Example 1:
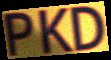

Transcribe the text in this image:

PKD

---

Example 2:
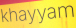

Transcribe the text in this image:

khayyam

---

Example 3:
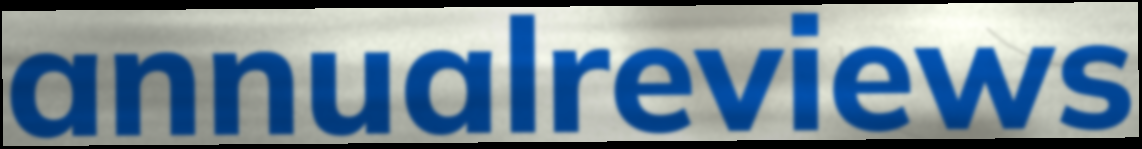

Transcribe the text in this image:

annualreviews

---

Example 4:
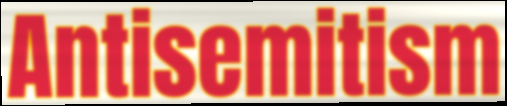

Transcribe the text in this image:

Antisemitism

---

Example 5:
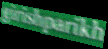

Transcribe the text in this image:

girishparikh